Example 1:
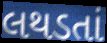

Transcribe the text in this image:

લથડતાં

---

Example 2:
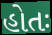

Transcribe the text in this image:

હોતઃ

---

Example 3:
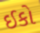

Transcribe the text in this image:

ઈકો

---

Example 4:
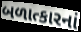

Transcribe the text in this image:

બળાત્કારનાં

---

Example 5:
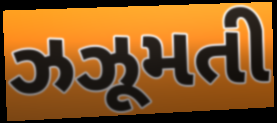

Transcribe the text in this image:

ઝઝૂમતી